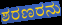
ಶರಣರನು